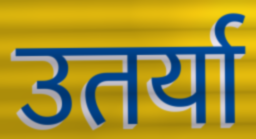
उतर्या